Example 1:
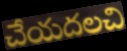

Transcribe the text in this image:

చేయదలచి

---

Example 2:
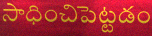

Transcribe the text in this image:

సాధించిపెట్టడం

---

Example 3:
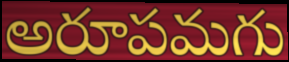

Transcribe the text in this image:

అరూపమగు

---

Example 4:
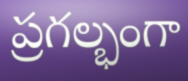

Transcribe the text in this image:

ప్రగల్భంగా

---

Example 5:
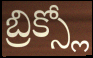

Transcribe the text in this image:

బ్రిక్స్లో